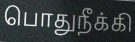
பொதுநீக்கி